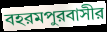
বহরমপুরবাসীর